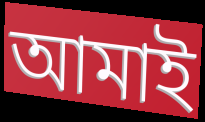
আমাই